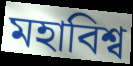
মহাবিশ্ব